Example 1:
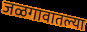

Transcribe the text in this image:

जळगावातल्या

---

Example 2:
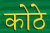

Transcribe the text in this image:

कोठे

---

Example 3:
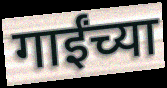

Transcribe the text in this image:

गाईंच्या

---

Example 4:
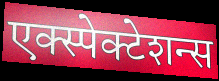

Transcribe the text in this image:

एक्स्पेक्टेशन्स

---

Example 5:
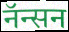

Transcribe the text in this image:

नॅन्सन